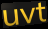
uvt